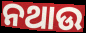
ନଥାଉ